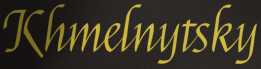
Khmelnytsky